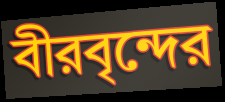
বীরবৃন্দের